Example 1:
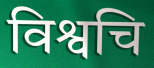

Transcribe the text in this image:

विश्वचि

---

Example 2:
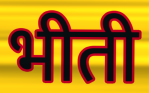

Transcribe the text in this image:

भीती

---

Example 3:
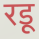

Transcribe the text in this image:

रडू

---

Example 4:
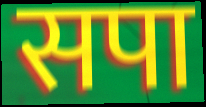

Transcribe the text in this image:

सपा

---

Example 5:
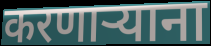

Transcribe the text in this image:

करणाऱ्याना